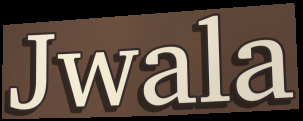
Jwala